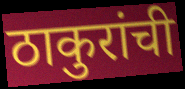
ठाकुरांची